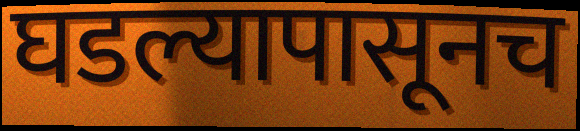
घडल्यापासूनच